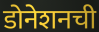
डोनेशनची